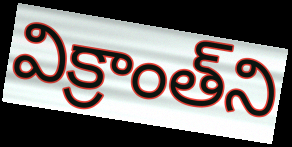
విక్రాంత్‌ని